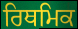
ਰਿਥਮਿਕ